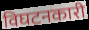
विघटनकारी